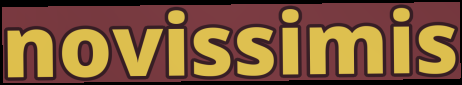
novissimis